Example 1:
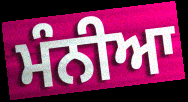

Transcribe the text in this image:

ਮੰਨੀਆ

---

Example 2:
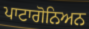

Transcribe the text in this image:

ਪਾਟਾਗੋਨਿਅਨ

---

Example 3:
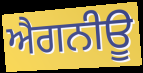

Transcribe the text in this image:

ਐਗਨੀਊ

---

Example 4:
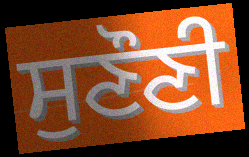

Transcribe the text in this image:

ਸੁਣੌਣੀ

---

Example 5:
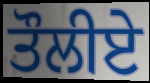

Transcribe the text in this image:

ਤੌਲੀਏ